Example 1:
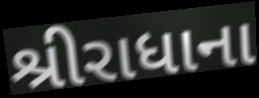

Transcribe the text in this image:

શ્રીરાધાના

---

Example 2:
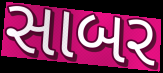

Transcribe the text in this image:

સાબર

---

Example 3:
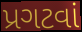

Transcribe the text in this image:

પ્રગટવાં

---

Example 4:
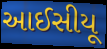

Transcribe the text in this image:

આઈસીયૂ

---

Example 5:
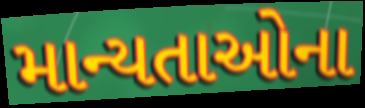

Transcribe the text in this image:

માન્યતાઓના